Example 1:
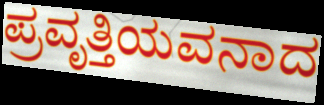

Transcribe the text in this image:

ಪ್ರವೃತ್ತಿಯವನಾದ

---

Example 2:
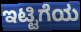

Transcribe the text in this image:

ಇಟ್ಟಿಗೆಯ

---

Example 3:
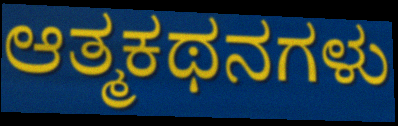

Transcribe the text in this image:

ಆತ್ಮಕಥನಗಳು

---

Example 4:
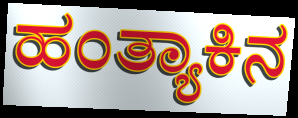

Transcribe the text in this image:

ಹಂತ್ಯಾಕಿನ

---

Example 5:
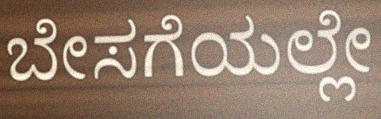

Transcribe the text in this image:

ಬೇಸಗೆಯಲ್ಲೇ